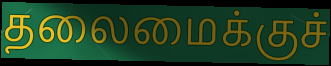
தலைமைக்குச்